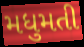
મધુમતી